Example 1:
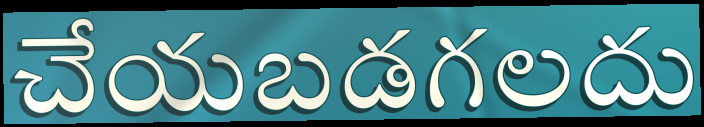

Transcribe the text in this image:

చేయబడగలదు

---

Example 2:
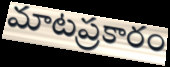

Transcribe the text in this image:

మాటప్రకారం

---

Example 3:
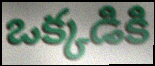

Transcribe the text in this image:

ఒక్కడికి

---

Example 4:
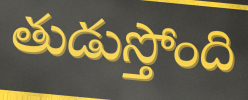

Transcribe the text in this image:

తుడుస్తోంది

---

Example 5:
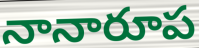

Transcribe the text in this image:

నానారూప